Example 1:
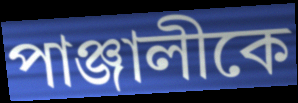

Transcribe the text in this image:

পাঞ্জালীকে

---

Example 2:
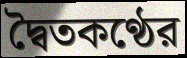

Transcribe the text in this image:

দ্বৈতকণ্ঠের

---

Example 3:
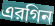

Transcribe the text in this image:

এরগিন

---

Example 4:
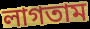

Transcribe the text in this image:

লাগতাম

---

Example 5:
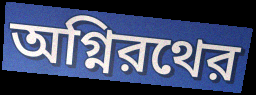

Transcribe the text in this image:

অগ্নিরথের